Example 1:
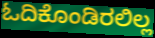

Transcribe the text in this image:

ಓದಿಕೊಂಡಿರಲಿಲ್ಲ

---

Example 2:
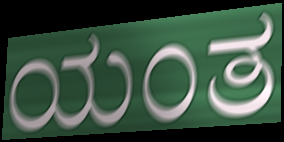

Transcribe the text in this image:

ಯಂತ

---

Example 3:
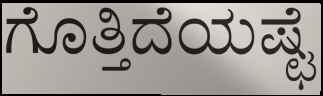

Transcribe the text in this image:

ಗೊತ್ತಿದೆಯಷ್ಟೆ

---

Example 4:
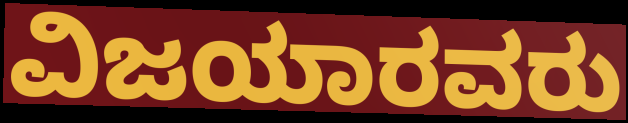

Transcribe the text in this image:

ವಿಜಯಾರವರು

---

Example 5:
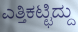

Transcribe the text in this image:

ಎತ್ತಿಕಟ್ಟಿದ್ದು